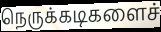
நெருக்கடிகளைச்